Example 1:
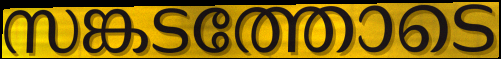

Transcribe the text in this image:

സങ്കടത്തോടെ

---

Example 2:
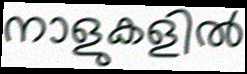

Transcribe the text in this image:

നാളുകളിൽ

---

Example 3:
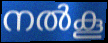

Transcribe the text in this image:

നൽകൂ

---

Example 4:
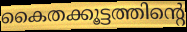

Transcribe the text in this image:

കൈതക്കൂട്ടത്തിന്റെ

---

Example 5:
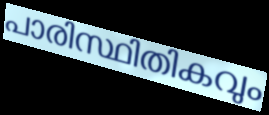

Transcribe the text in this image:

പാരിസ്ഥിതികവും